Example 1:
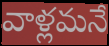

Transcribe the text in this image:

వాళ్లమనే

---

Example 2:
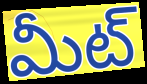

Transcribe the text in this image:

మీట్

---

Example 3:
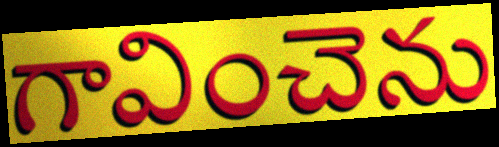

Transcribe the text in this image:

గావించెను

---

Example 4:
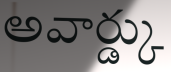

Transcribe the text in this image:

అవార్డ్కు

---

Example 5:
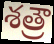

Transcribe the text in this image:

శత్రౌ